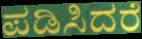
ಪಡಿಸಿದರೆ